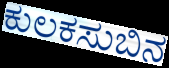
ಕುಲಕಸುಬಿನ